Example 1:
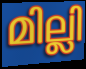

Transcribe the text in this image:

മില്ലി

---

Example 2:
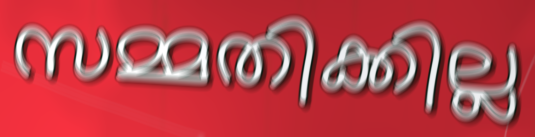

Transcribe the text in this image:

സമ്മതിക്കില്ല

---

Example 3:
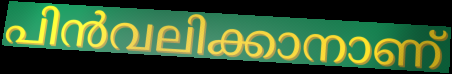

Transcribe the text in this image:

പിൻവലിക്കാനാണ്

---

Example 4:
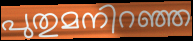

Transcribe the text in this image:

പുതുമനിറഞ്ഞ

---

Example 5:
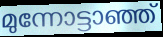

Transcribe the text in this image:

മുന്നോട്ടാഞ്ഞ്